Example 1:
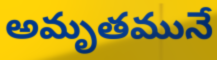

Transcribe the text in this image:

అమృతమునే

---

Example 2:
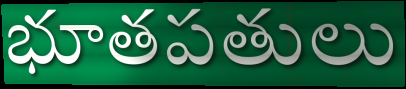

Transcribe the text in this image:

భూతపతులు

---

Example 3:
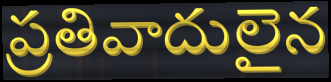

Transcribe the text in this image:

ప్రతివాదులైన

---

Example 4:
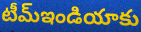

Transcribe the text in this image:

టీమ్ఇండియాకు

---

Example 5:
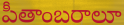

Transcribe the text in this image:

పీతాంబరాలూ